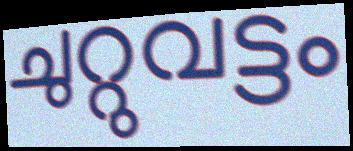
ചുറ്റുവട്ടം